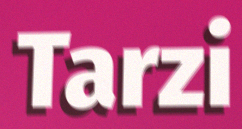
Tarzi